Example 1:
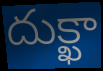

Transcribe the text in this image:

దుక్ఖా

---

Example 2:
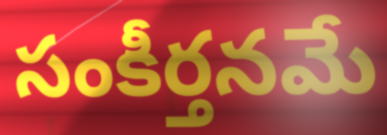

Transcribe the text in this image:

సంకీర్తనమే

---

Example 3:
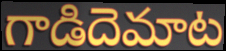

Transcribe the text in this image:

గాడిదెమాట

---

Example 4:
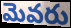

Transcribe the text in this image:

మెవరు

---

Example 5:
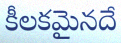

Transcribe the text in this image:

కీలకమైనదే